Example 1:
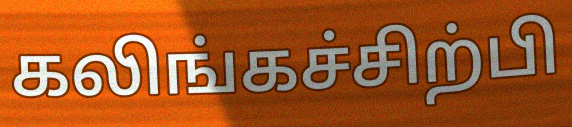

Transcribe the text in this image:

கலிங்கச்சிற்பி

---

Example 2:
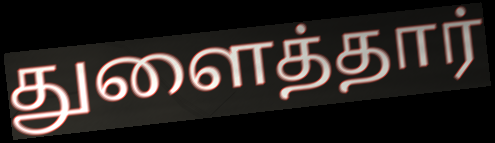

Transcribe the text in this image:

துளைத்தார்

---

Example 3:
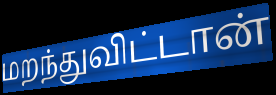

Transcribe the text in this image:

மறந்துவிட்டான்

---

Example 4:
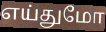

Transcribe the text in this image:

எய்துமோ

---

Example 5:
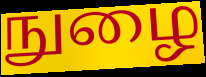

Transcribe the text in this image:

நுழை